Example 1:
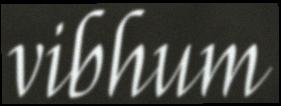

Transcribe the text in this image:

vibhum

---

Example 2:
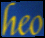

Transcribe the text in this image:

heo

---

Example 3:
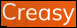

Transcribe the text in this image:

Creasy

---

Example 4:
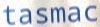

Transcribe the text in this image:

tasmac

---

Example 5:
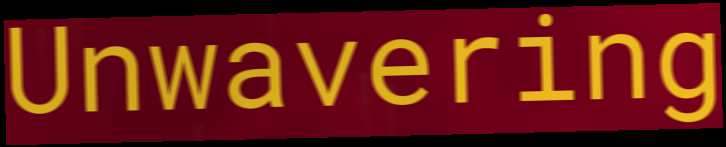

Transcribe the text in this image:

Unwavering